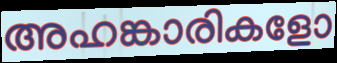
അഹങ്കാരികളോ